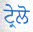
ਟ੍ਰੇਲੋ